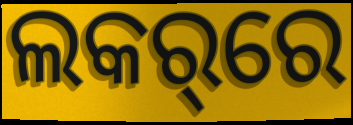
ଲକର୍‌ରେ